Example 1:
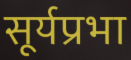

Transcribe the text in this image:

सूर्यप्रभा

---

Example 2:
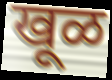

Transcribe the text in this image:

खूळ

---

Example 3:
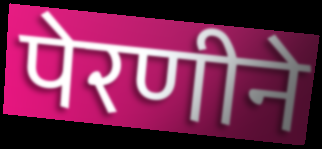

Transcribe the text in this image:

पेरणीने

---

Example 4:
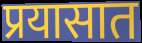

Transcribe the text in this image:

प्रयासात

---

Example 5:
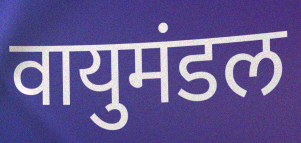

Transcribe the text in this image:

वायुमंडल